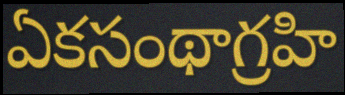
ఏకసంథాగ్రహి